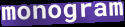
monogram